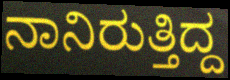
ನಾನಿರುತ್ತಿದ್ದ